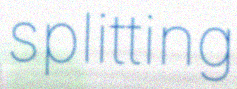
splitting